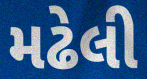
મઢેલી